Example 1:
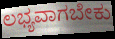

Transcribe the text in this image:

ಲಭ್ಯವಾಗಬೇಕು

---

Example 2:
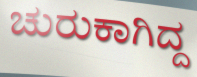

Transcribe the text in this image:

ಚುರುಕಾಗಿದ್ದ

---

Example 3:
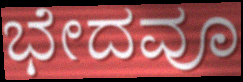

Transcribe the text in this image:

ಭೇದವೂ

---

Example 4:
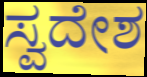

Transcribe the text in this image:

ಸ್ವದೇಶ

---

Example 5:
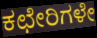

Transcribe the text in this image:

ಕಛೇರಿಗಳೇ